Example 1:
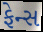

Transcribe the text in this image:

ફેન્સ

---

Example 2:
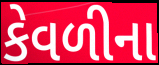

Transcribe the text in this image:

કેવળીના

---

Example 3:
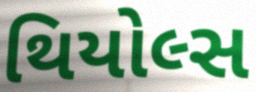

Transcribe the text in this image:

થિયોલ્સ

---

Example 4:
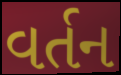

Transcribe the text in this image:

વર્તન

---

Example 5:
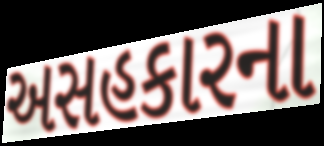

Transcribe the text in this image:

અસહકારના